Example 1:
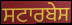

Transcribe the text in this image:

ਸਟਾਰਬੇਸ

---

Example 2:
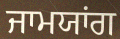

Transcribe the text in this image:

ਜਾਮਯਾਂਗ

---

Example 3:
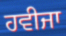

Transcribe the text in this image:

ਹਵੀਜਾ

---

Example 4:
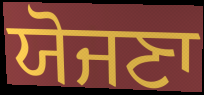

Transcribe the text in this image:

ਯੋਜਣਾ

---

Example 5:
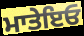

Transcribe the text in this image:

ਮਾਤੇਇਓ